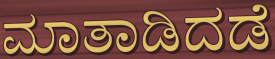
ಮಾತಾಡಿದಡೆ